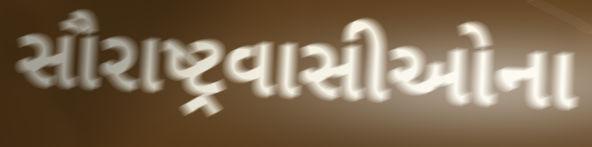
સૌરાષ્ટ્રવાસીઓના